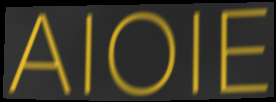
AIOIE